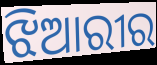
ଝିଆରୀର